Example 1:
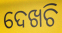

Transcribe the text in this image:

ଦେଖଚି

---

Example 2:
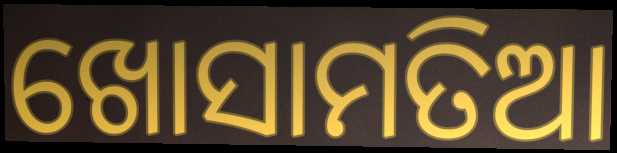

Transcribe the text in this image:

ଖୋସାମତିଆ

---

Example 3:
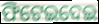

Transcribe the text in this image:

ଫିଟେଇଦେଇ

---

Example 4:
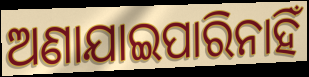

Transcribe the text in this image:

ଅଣାଯାଇପାରିନାହିଁ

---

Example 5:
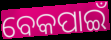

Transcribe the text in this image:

ବେକପାଇଁ